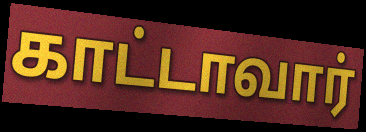
காட்டாவார்